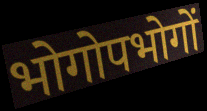
भोगोपभोगों